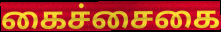
கைச்சைகை